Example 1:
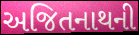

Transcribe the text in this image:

અજિતનાથની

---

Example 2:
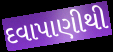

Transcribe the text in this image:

દવાપાણીથી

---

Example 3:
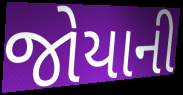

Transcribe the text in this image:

જોયાની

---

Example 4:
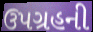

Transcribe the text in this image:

ઉપગ્રહની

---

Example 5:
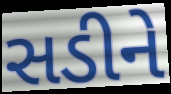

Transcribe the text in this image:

સડીને